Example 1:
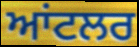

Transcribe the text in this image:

ਆਂਟਲਰ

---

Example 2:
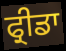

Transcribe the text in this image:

ਫ੍ਰੀਡਾ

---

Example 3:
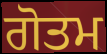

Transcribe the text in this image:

ਗੋਤਮ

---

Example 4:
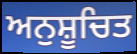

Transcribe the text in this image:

ਅਨੁਸ਼ੂਚਿਤ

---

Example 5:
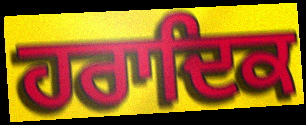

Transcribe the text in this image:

ਹਰਾਦਿਕ